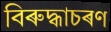
বিৰুদ্ধাচৰণ